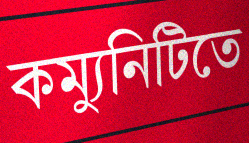
কম্যুনিটিতে